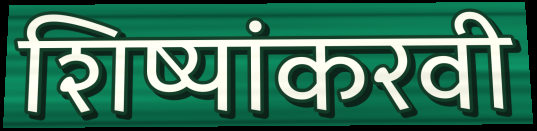
शिष्यांकरवी